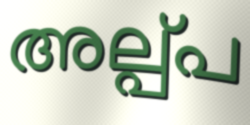
അല്പ്പ